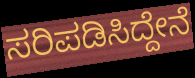
ಸರಿಪಡಿಸಿದ್ದೇನೆ